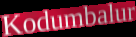
Kodumbalur